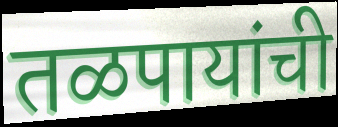
तळपायांची